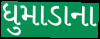
ધુમાડાના